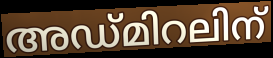
അഡ്മിറലിന്